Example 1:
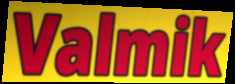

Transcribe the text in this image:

Valmik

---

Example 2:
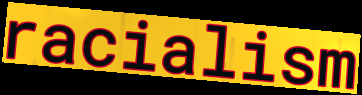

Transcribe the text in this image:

racialism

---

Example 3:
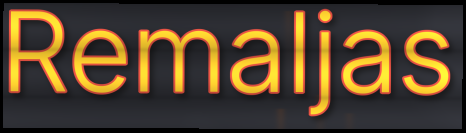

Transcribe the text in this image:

Remaljas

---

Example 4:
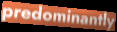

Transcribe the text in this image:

predominantly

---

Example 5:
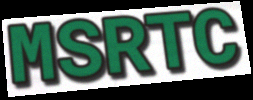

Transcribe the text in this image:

MSRTC